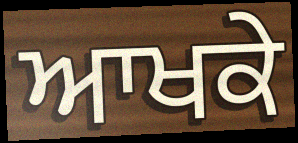
ਆਖਕੇ